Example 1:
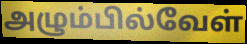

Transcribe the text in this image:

அழும்பில்வேள்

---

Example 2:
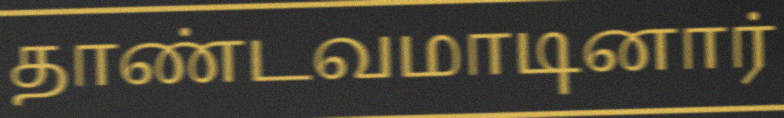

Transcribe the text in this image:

தாண்டவமாடினார்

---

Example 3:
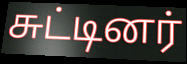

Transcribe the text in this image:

சுட்டினர்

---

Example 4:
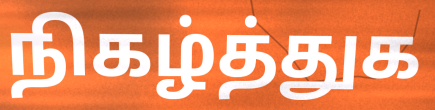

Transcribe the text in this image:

நிகழ்த்துக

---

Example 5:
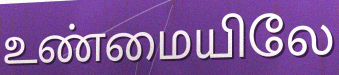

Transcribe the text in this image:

உண்மையிலே